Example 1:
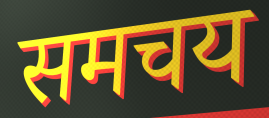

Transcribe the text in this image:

समचय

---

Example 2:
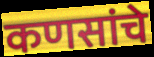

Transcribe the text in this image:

कणसांचे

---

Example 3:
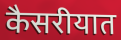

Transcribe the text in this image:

कैसरीयात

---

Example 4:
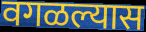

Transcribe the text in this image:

वगळल्यास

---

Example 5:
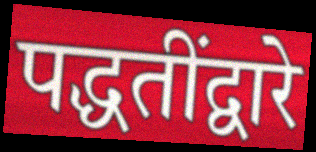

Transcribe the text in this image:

पद्धतींद्वारे